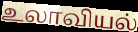
உலாவியல்